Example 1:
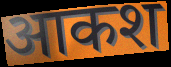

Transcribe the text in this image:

आकश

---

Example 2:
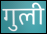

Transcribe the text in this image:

गुली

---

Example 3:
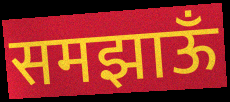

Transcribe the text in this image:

समझाऊँ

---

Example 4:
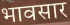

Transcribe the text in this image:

भावसार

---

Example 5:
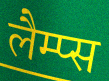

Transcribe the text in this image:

लैम्प्स